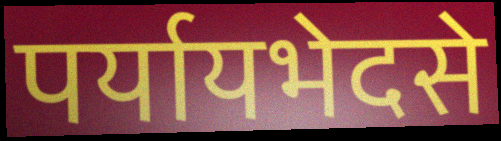
पर्यायभेदसे